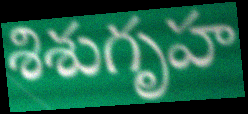
శిశుగృహ